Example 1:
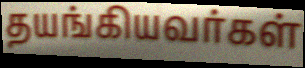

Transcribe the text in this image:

தயங்கியவர்கள்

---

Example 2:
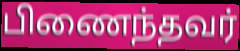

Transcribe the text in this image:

பிணைந்தவர்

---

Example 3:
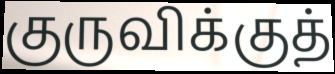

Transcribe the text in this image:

குருவிக்குத்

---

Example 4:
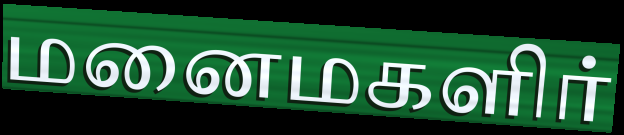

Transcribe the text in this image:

மனைமகளிர்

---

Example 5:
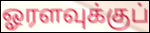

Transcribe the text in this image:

ஓரளவுக்குப்